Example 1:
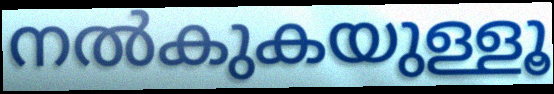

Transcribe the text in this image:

നൽകുകയുള്ളൂ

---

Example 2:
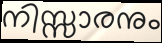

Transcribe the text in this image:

നിസ്സാരനും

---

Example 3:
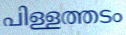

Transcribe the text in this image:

പിള്ളത്തടം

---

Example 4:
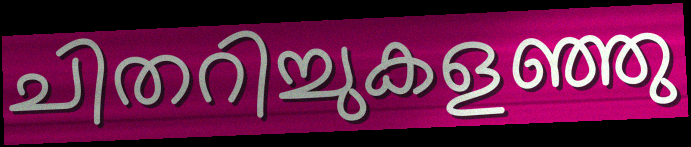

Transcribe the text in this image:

ചിതറിച്ചുകളഞ്ഞു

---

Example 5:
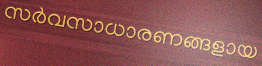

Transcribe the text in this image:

സർവസാധാരണങ്ങളായ